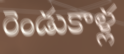
రెండుకాళ్ల